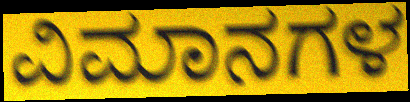
ವಿಮಾನಗಳ